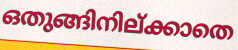
ഒതുങ്ങിനില്ക്കാതെ